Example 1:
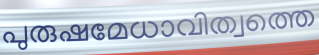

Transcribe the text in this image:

പുരുഷമേധാവിത്വത്തെ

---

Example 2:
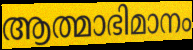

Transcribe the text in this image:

ആത്മാഭിമാനം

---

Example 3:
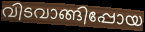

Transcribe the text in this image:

വിടവാങ്ങിപ്പോയ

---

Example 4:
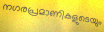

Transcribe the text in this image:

നഗരപ്രമാണികളുടെയും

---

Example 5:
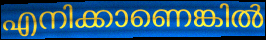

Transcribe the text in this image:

എനിക്കാണെങ്കിൽ